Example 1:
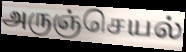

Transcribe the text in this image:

அருஞ்செயல்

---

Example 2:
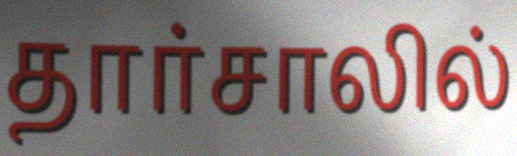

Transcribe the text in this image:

தார்சாலில்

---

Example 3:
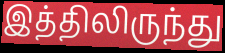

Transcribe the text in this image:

இத்திலிருந்து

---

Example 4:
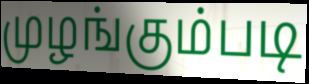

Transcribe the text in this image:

முழங்கும்படி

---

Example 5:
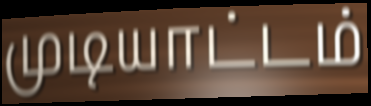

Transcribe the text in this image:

முடியாட்டம்